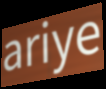
ariye